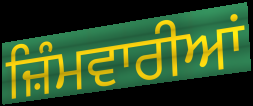
ਜ਼ਿੰਮਵਾਰੀਆਂ